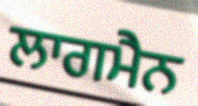
ਲਾਗਮੈਨ